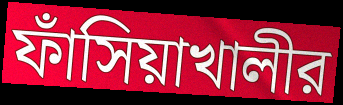
ফাঁসিয়াখালীর